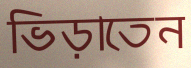
ভিড়াতেন